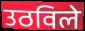
उठविले